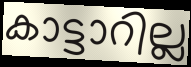
കാട്ടാറില്ല